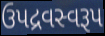
ઉપદ્રવસ્વરૂપ